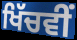
ਖਿੱਚਵੀਂ